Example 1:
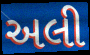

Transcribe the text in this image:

અલી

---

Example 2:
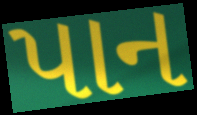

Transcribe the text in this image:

પાન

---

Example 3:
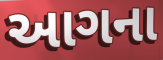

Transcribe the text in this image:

આગના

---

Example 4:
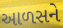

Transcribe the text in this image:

આળસને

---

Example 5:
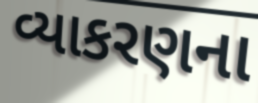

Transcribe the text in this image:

વ્યાકરણના